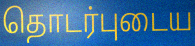
தொடர்புடைய